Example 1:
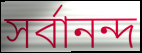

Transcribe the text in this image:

সৰ্বানন্দ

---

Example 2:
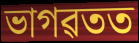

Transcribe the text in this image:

ভাগৱতত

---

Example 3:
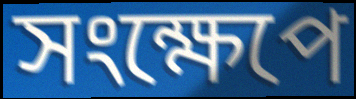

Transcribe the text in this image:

সংক্ষেপে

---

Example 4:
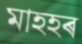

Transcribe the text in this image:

মাহহৰ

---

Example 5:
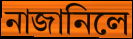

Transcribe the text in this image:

নাজানিলে